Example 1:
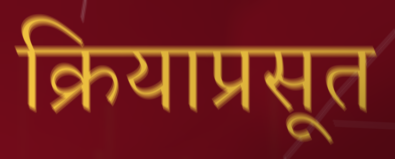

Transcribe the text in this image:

क्रियाप्रसूत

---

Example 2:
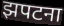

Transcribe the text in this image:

झपटना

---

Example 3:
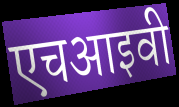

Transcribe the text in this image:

एचआइवी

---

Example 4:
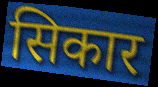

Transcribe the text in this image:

सिकार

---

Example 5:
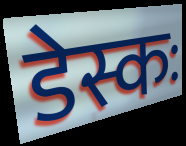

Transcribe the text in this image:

डेस्कः